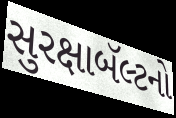
સુરક્ષાબૅલ્ટનો